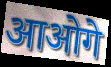
आओगे